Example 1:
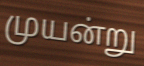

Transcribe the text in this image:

முயன்று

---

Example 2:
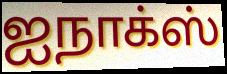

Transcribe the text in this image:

ஐநாக்ஸ்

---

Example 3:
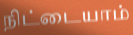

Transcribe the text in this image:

நிட்டையாம்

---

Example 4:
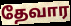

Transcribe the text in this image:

தேவார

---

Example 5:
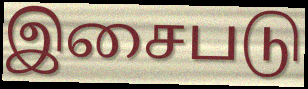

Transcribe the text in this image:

இசைபடு